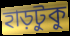
হাড়টুকু